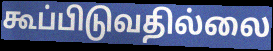
கூப்பிடுவதில்லை